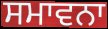
ਸਮਾਵਨਾ